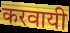
करवायी